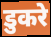
डुकरे